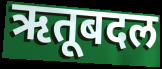
ऋतूबदल